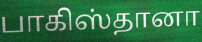
பாகிஸ்தானா